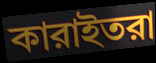
কারাইতরা